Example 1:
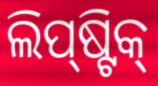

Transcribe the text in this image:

ଲିପ୍‍ଷ୍ଟିକ୍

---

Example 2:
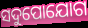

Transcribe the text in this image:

ସଦୁପୋଯୋଗ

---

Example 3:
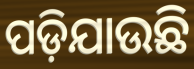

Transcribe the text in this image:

ପଡ଼ିଯାଉଛି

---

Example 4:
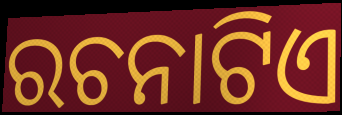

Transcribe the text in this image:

ରଚନାଟିଏ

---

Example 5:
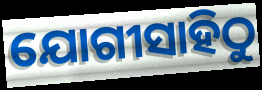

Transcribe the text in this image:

ଯୋଗୀସାହିଠୁ